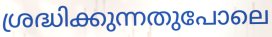
ശ്രദ്ധിക്കുന്നതുപോലെ